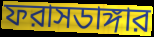
ফরাসডাঙ্গার